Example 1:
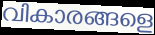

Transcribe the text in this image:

വികാരങ്ങളെ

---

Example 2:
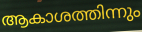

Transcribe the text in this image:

ആകാശത്തിന്നും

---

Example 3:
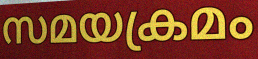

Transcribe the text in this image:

സമയക്രമം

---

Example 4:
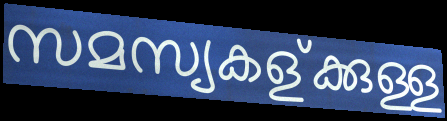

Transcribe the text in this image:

സമസ്യകള്ക്കുള്ള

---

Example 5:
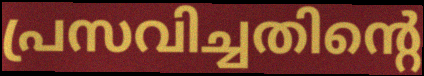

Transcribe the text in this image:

പ്രസവിച്ചതിന്റെ